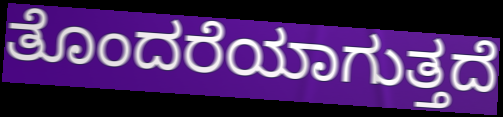
ತೊಂದರೆಯಾಗುತ್ತದೆ